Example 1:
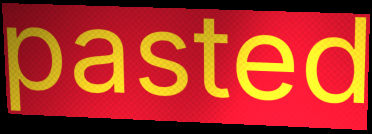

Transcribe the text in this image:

pasted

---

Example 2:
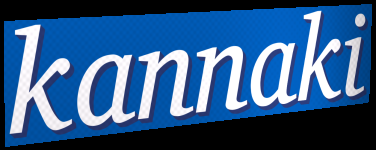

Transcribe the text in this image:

kannaki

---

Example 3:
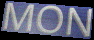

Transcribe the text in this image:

MON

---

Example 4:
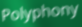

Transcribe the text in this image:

Polyphony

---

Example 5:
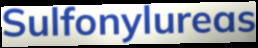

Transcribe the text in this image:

Sulfonylureas